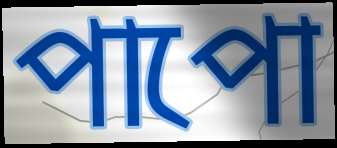
পাপো